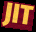
JIT